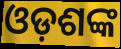
ଓଡ଼ଶଙ୍କ